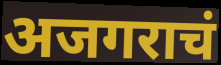
अजगराचं